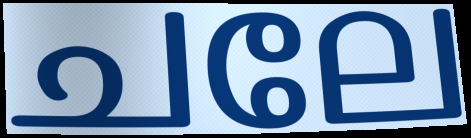
ചലേ